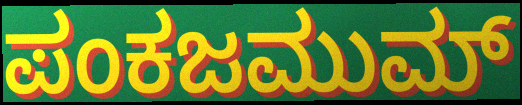
ಪಂಕಜಮುಮ್